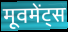
मूवमेंट्स